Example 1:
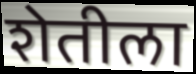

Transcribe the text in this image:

शेतीला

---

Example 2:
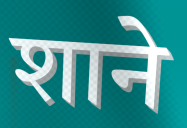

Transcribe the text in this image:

शाने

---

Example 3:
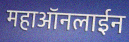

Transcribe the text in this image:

महाऑनलाईन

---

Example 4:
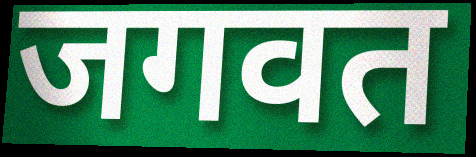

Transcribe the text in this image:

जगवत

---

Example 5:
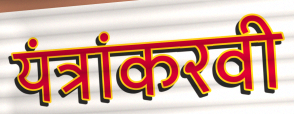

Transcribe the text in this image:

यंत्रांकरवी